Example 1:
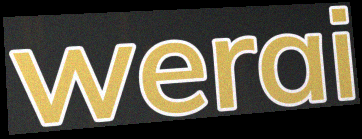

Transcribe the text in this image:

werai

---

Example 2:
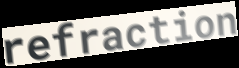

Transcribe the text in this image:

refraction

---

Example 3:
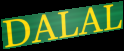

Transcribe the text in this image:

DALAL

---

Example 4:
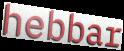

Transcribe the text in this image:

hebbar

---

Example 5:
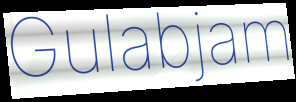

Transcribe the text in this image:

Gulabjam